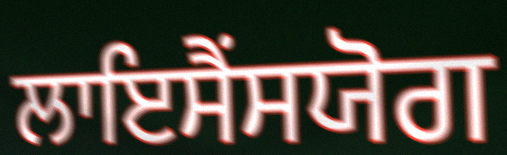
ਲਾਇਸੈਂਸਯੋਗ